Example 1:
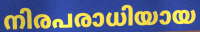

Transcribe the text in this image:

നിരപരാധിയായ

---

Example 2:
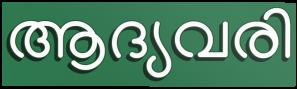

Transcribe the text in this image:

ആദ്യവരി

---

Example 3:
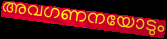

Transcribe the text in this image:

അവഗണനയോടും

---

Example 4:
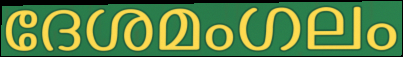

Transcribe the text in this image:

ദേശമംഗലം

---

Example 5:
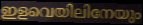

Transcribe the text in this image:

ഇളവെയിലിനേയും